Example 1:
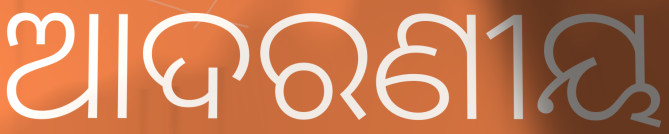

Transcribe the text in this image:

ଆଦରଣୀୟ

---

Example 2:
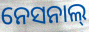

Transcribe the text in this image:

ନେସନାଲ୍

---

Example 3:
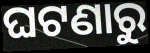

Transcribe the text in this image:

ଘଟଣାରୁ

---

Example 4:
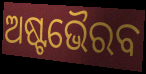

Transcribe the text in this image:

ଅଷ୍ଟଭୈରବ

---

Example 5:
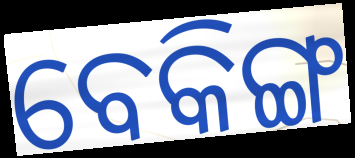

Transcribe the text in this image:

ବେକିଙ୍ଗ